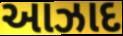
આઝાદ